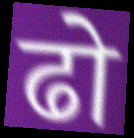
ढो